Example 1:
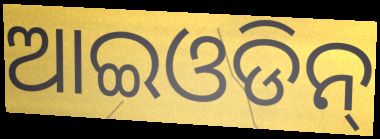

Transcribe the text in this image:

ଆଇଓଡିନ୍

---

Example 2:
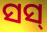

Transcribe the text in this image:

ସସ୍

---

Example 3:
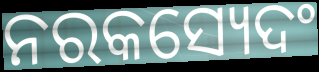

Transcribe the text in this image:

ନରକସ୍ୟେଦଂ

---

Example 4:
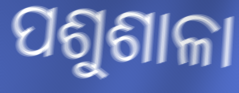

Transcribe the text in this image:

ପଶୁଶାଳା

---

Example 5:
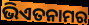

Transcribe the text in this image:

ଭିଏତନାମର